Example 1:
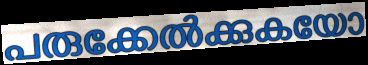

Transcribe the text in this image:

പരുക്കേൽക്കുകയോ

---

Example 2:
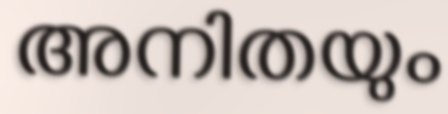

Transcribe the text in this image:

അനിതയും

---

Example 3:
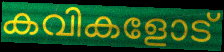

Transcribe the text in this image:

കവികളോട്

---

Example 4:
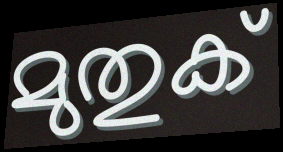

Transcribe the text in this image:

മുതുക്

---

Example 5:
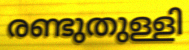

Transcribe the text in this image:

രണ്ടുതുള്ളി